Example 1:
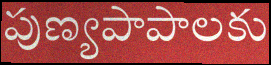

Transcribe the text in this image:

పుణ్యపాపాలకు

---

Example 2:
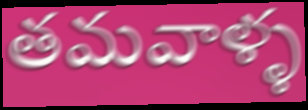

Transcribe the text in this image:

తమవాళ్ళ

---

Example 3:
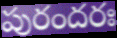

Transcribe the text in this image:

పురందరః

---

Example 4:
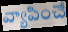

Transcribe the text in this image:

వ్యాపించే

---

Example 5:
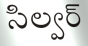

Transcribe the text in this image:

సిల్వర్